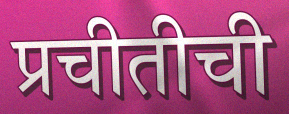
प्रचीतीची